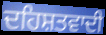
ਦਹਿਸ਼ਤਵਾਦੀ